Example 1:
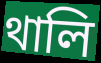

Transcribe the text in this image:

থালি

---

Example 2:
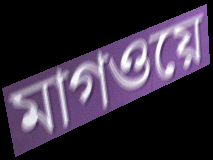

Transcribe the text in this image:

মাগওয়ে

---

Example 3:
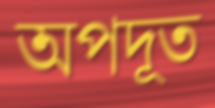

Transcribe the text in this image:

অপদূত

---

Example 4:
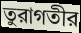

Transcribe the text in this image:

তুরাগতীর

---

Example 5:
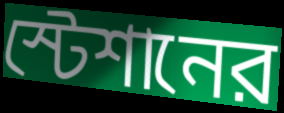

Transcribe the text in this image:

স্টেশানের